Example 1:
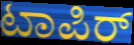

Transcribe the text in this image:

ಟಾಪಿರ್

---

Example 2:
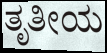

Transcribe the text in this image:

ತೃತೀಯ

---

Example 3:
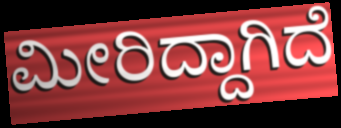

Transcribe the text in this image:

ಮೀರಿದ್ದಾಗಿದೆ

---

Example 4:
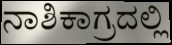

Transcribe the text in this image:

ನಾಶಿಕಾಗ್ರದಲ್ಲಿ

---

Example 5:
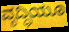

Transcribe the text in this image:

ವೃದ್ಧಿಯೂ